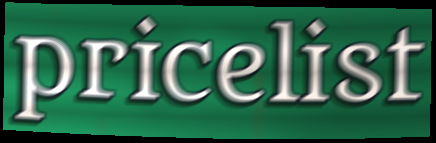
pricelist